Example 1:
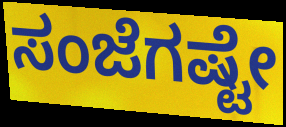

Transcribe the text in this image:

ಸಂಜೆಗಷ್ಟೇ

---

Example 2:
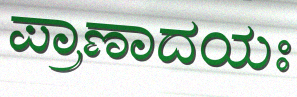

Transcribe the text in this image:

ಪ್ರಾಣಾದಯಃ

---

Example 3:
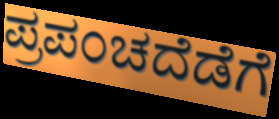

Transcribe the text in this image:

ಪ್ರಪಂಚದೆಡೆಗೆ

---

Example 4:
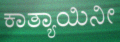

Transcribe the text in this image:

ಕಾತ್ಯಾಯಿನೀ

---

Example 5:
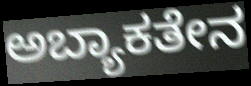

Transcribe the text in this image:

ಅಬ್ಯಾಕತೇನ